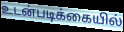
உடன்படிக்கையில்